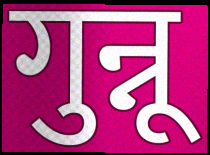
गुन्नू